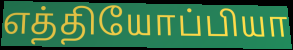
எத்தியோப்பியா